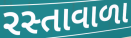
રસ્તાવાળા